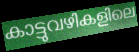
കാട്ടുവഴികളിലെ